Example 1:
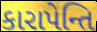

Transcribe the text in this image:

કારાપેન્તિ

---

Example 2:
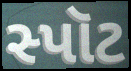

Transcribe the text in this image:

સ્પૉટ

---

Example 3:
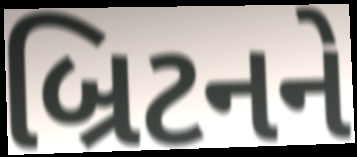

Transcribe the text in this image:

બ્રિટનને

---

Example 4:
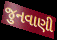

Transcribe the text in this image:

જુનવાણી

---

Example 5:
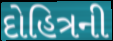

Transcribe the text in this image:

દોહિત્રની